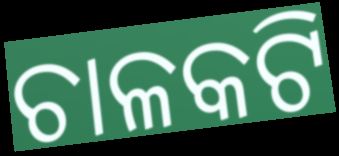
ଚାଳକଟି